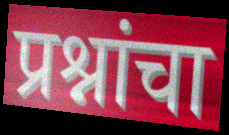
प्रश्नांचा